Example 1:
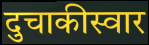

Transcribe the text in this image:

दुचाकीस्वार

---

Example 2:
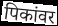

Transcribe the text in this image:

पिकांवर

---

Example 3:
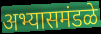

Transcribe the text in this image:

अभ्यासमंडळे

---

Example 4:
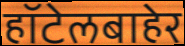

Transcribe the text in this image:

हॉटेलबाहेर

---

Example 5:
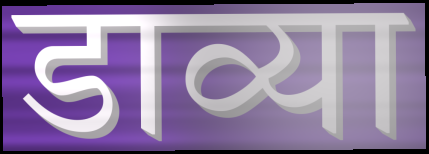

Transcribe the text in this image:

डाव्या